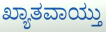
ಖ್ಯಾತವಾಯ್ತು